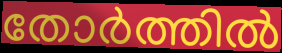
തോർത്തിൽ